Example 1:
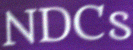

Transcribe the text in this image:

NDCs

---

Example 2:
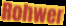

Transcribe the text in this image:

Rohwer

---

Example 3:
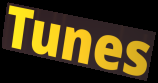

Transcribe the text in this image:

Tunes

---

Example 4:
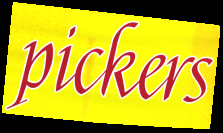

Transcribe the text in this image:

pickers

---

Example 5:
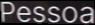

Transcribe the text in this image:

Pessoa